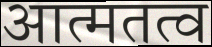
आत्मतत्व